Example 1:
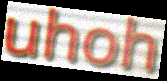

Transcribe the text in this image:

uhoh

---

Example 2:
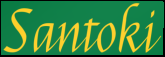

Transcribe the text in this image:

Santoki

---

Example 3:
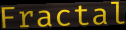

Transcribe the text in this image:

Fractal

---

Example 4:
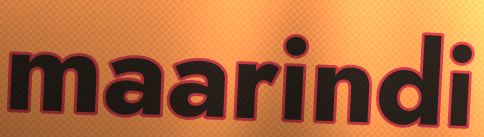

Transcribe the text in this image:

maarindi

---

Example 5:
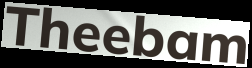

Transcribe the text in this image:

Theebam